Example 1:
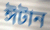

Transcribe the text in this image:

ঈটান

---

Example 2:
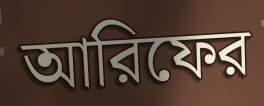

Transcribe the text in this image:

আরিফের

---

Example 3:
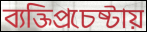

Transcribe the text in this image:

ব্যক্তিপ্রচেষ্টায়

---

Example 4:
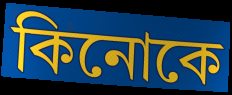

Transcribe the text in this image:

কিনোকে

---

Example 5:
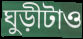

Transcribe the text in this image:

ঘুড়ীটাও